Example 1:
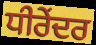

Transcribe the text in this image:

ਧੀਰੇਂਦਰ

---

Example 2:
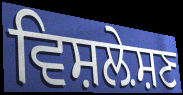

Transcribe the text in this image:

ਵਿਸ਼ਲ਼ੇਸ਼ਣ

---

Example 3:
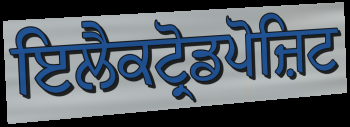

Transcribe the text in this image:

ਇਲੈਕਟ੍ਰੋਡਪੋਜ਼ਿਟ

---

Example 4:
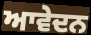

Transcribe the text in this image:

ਆਵੇਦਨ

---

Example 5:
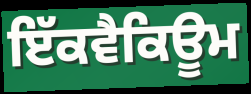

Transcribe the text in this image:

ਇੱਕਵੈਕਿਊਮ